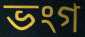
ভংগ